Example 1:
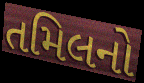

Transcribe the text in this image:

તમિલનો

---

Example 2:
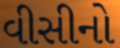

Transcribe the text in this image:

વીસીનો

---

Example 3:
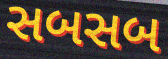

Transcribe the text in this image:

સબસબ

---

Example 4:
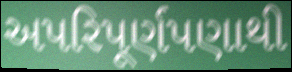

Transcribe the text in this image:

અપરિપૂર્ણપણાથી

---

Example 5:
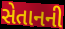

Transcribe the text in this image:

સેતાનની